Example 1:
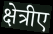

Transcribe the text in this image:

क्षेत्रीए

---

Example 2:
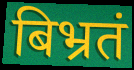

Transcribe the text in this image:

बिभ्रतं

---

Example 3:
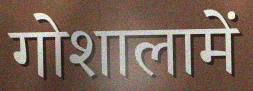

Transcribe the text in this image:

गोशालामें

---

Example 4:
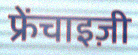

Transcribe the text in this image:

फ्रेंचाइज़ी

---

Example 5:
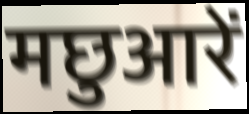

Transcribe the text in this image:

मछुआरें